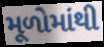
મૂળોમાંથી